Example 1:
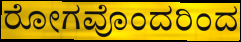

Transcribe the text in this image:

ರೋಗವೊಂದರಿಂದ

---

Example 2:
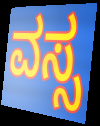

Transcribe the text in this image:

ವಸ್ಸ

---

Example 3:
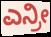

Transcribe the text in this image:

ಎನ್ರೀ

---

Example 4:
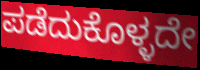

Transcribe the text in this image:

ಪಡೆದುಕೊಳ್ಳದೇ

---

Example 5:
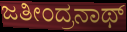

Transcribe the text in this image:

ಜತೀಂದ್ರನಾಥ್